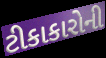
ટીકાકારોની